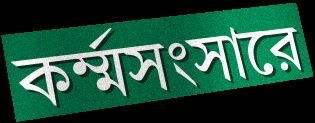
কর্ম্মসংসারে